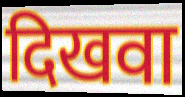
दिखवा